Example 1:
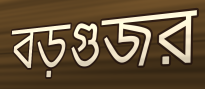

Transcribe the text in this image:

বড়গুজর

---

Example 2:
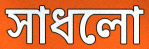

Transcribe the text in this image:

সাধলো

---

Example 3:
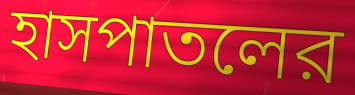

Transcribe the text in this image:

হাসপাতলের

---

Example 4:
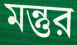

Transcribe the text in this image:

মন্তুর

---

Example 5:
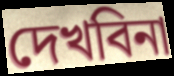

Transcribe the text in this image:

দেখবিনা